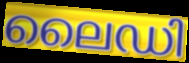
ലൈഡി